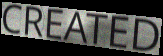
CREATED